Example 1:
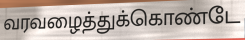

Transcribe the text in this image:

வரவழைத்துக்கொண்டே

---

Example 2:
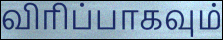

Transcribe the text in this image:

விரிப்பாகவும்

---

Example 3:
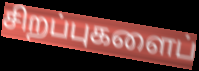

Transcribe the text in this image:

சிறப்புகளைப்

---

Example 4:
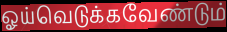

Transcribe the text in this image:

ஓய்வெடுக்கவேண்டும்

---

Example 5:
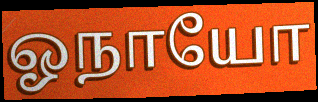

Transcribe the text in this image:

ஓநாயோ